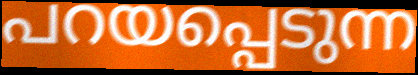
പറയപ്പെടുന്ന